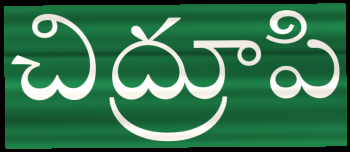
చిద్రూపి